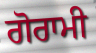
ਗੋਰਾਮੀ